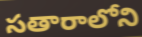
సతారాలోని